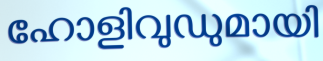
ഹോളിവുഡുമായി